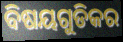
ବିଷୟଗୁଡିକର